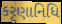
કરૃણાનિધિ